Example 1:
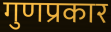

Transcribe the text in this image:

गुणप्रकार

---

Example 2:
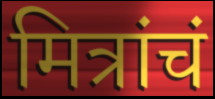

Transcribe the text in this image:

मित्रांचं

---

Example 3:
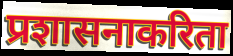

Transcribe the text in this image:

प्रशासनाकरिता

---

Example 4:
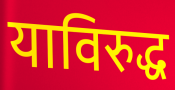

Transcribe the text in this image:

याविरुद्ध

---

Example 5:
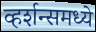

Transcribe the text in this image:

व्हर्शन्समध्ये